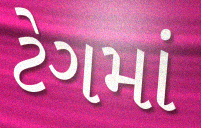
ટેગમાં